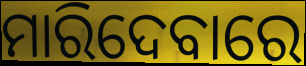
ମାରିଦେବାରେ